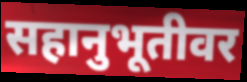
सहानुभूतीवर